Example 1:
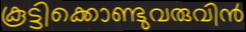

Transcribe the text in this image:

കൂട്ടിക്കൊണ്ടുവരുവിൻ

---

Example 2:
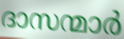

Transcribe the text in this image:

ദാസന്മാർ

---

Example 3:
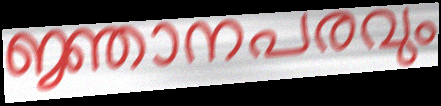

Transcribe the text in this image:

ജ്ഞാനപരവും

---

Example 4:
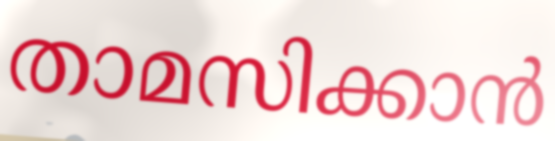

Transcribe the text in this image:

താമസിക്കാൻ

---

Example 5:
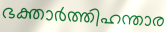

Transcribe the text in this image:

ഭക്താർത്തിഹന്താര